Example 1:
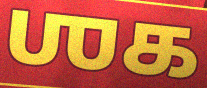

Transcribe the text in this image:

ஶக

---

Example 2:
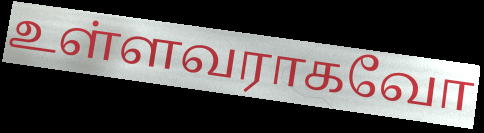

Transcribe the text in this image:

உள்ளவராகவோ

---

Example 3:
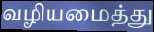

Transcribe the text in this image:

வழியமைத்து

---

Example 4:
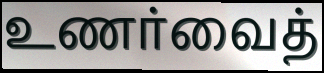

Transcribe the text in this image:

உணர்வைத்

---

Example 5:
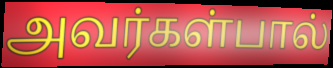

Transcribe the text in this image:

அவர்கள்பால்